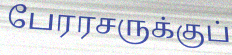
பேரரசருக்குப்